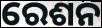
ରେଶନ